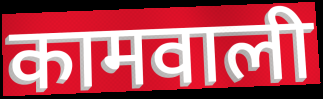
कामवाली